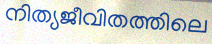
നിത്യജീവിതത്തിലെ